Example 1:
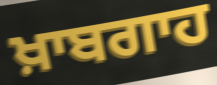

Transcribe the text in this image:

ਖ਼ਾਬਗਾਹ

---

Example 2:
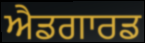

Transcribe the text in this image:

ਐਡਗਾਰਡ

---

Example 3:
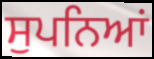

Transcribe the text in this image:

ਸੁਪਨਿਆਂ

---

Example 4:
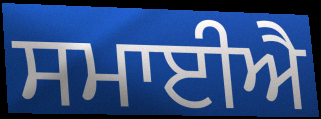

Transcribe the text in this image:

ਸਮਾਈਐ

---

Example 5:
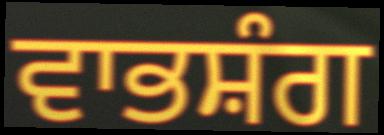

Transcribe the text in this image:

ਵਾਭਸ਼ੰਗ